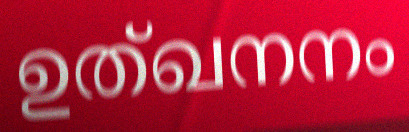
ഉത്ഖനനം